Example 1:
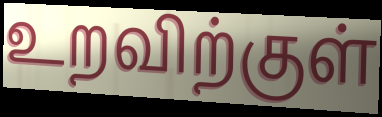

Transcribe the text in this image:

உறவிற்குள்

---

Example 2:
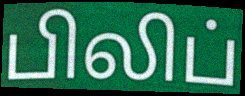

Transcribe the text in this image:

பிலிப்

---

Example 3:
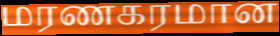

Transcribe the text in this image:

மரணகரமான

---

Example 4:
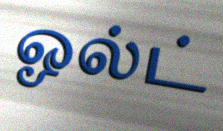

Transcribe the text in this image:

ஓல்ட்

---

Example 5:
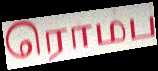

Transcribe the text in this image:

ரொமப